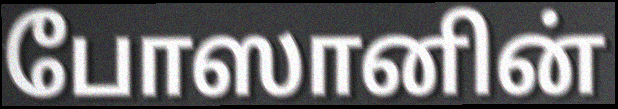
போஸானின்